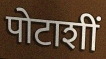
पोटाशीं